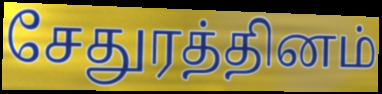
சேதுரத்தினம்